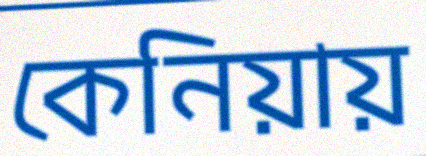
কেনিয়ায়